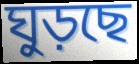
ঘুড়ছে